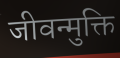
जीवन्मुक्ति